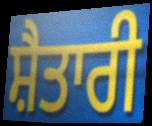
ਸ਼ੈਤਾਰੀ